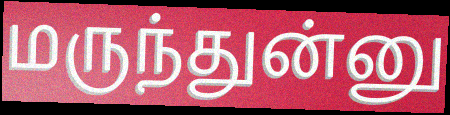
மருந்துன்னு